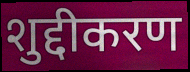
शुद्दीकरण